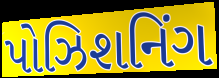
પોઝિશનિંગ